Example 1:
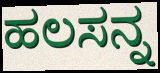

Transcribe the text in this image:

ಹಲಸನ್ನ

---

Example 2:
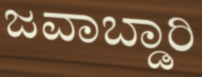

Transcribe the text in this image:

ಜವಾಬ್ಡಾರಿ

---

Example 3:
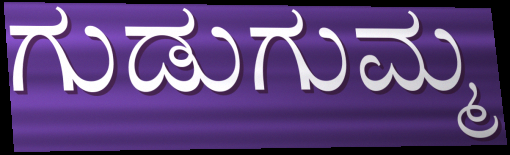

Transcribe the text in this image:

ಗುಡುಗುಮ್ಮ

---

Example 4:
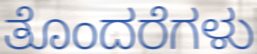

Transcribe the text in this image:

ತೊಂದರೆಗಳು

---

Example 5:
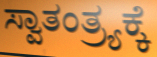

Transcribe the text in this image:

ಸ್ವಾತಂತ್ರ್ಯಕ್ಕೆ